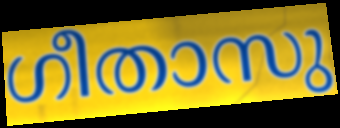
ഗീതാസു